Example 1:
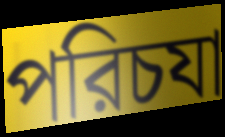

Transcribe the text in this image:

পরিচযা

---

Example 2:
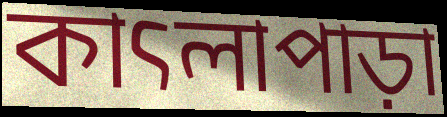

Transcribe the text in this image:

কাৎলাপাড়া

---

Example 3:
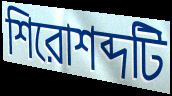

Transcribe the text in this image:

শিরোশব্দটি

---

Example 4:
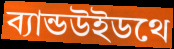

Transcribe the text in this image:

ব্যান্ডউইডথে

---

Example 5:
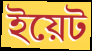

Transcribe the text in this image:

ইয়েট